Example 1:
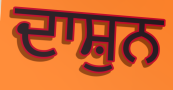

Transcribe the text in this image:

ਦਾਸ਼ੁਨ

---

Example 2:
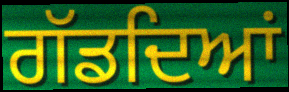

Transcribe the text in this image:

ਗੱਡਦਿਆਂ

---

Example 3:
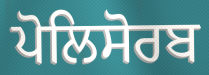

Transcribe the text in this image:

ਪੋਲਿਸੋਰਬ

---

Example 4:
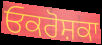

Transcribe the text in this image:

ਓਕਰੋਸ਼ਕਾ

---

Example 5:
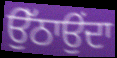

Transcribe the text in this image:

ਉੱਠਾਉਂਦਾ